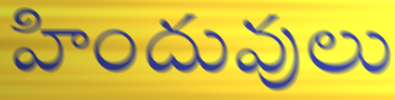
హిందువులు